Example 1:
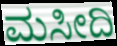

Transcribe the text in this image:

ಮಸೀದಿ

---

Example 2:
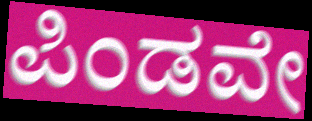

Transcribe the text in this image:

ಪಿಂಡವೇ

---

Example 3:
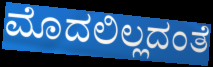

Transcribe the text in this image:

ಮೊದಲಿಲ್ಲದಂತೆ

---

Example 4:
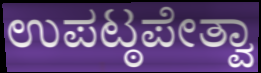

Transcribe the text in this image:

ಉಪಟ್ಠಪೇತ್ವಾ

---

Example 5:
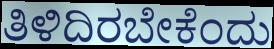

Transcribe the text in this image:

ತಿಳಿದಿರಬೇಕೆಂದು